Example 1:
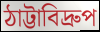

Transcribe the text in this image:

ঠাট্টাবিদ্রুপ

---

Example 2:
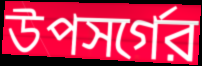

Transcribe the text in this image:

উপসর্গের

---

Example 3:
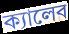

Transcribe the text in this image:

ক্যালেব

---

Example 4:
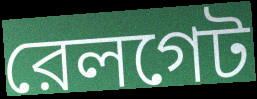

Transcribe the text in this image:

রেলগেট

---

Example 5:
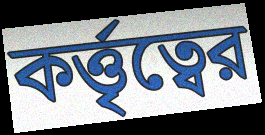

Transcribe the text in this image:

কর্ত্তৃত্বের